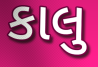
કાલુ